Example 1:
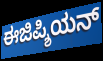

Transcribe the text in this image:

ಈಜಿಪ್ಶಿಯನ್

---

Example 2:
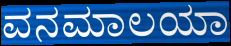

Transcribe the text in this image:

ವನಮಾಲಯಾ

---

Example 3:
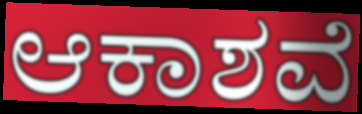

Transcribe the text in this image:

ಆಕಾಶವೆ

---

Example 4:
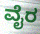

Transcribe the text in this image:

ವೈರ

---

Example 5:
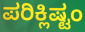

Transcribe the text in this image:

ಪರಿಕ್ಲಿಷ್ಟಂ